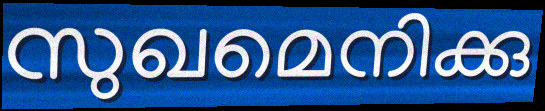
സുഖമെനിക്കു